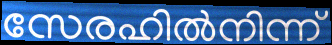
സേരഹിൽനിന്ന്